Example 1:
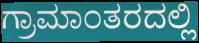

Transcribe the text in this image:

ಗ್ರಾಮಾಂತರದಲ್ಲಿ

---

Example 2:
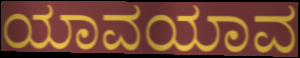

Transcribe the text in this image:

ಯಾವಯಾವ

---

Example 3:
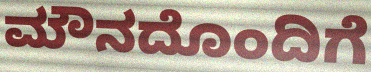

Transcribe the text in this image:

ಮೌನದೊಂದಿಗೆ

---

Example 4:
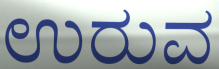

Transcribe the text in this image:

ಉರುವ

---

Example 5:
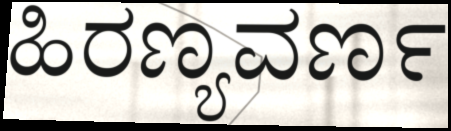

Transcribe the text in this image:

ಹಿರಣ್ಯವರ್ಣ